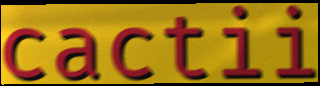
cactii